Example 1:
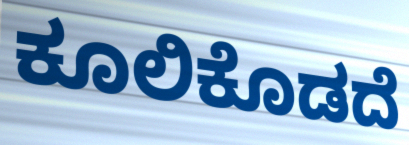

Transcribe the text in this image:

ಕೂಲಿಕೊಡದೆ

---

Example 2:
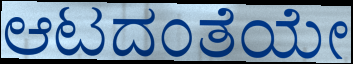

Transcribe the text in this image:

ಆಟದಂತೆಯೇ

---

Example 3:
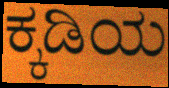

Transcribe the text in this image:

ಕ್ಕಡಿಯ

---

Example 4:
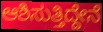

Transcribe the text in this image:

ಆಶಿಸುತ್ತಿದ್ದೇನೆ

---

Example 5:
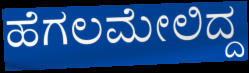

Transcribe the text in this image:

ಹೆಗಲಮೇಲಿದ್ದ